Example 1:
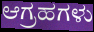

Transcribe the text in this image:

ಆಗ್ರಹಗಳು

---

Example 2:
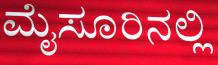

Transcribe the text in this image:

ಮೈಸೂರಿನಲ್ಲಿ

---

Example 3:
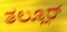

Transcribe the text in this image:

ತಲ್ಲೂರ್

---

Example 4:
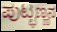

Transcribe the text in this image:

ಪುಟ್ಟಣ್ಣನ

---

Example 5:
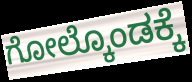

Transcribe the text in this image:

ಗೋಲ್ಕೊಂಡಕ್ಕೆ